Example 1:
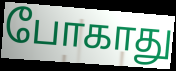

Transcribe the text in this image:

போகாது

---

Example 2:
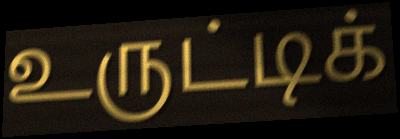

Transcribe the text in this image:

உருட்டிக்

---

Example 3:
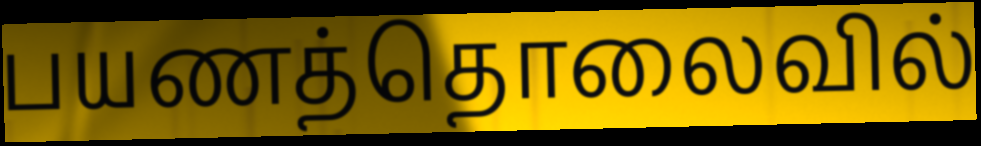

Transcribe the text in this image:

பயணத்தொலைவில்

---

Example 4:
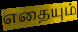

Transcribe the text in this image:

எதையும்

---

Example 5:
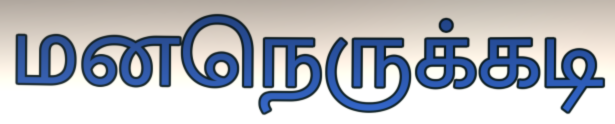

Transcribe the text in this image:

மனநெருக்கடி